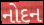
નોદન